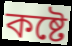
কষ্টে